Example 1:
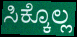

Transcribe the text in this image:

ಸಿಕ್ಕೊಲ್ಲ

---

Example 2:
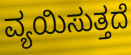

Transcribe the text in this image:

ವ್ಯಯಿಸುತ್ತದೆ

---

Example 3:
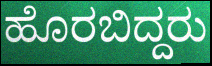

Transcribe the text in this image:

ಹೊರಬಿದ್ದರು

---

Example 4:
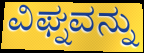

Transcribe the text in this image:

ವಿಘ್ನವನ್ನು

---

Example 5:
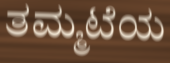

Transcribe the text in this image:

ತಮ್ಮಟೆಯ